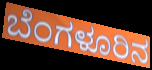
ಬೆಂಗಳೂರಿನ